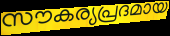
സൗകര്യപ്രദമായ